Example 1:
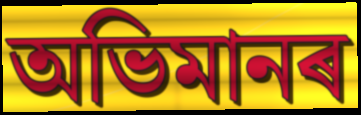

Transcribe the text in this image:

অভিমানৰ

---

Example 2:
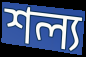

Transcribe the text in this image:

শল্য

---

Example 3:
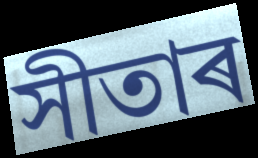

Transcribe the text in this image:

সীতাৰ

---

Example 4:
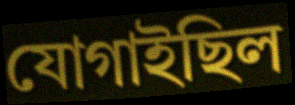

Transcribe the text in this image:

যোগাইছিল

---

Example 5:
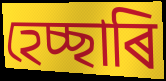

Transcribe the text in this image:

হেচ্ছাৰি